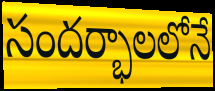
సందర్భాలలోనే